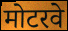
मोटरवे